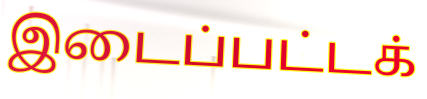
இடைப்பட்டக்